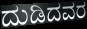
ದುಡಿದವರ